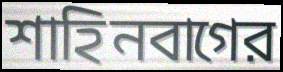
শাহিনবাগের